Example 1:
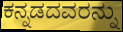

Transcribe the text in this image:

ಕನ್ನಡದವರನ್ನು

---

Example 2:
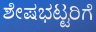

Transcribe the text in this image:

ಶೇಷಭಟ್ಟರಿಗೆ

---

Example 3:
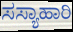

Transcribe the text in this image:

ಸಸ್ಯಾಹಾರಿ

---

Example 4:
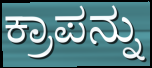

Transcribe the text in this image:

ಕ್ರಾಪನ್ನು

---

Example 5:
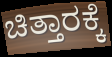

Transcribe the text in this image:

ಚಿತ್ತಾರಕ್ಕೆ